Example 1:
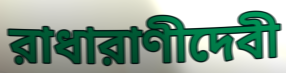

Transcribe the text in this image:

রাধারাণীদেবী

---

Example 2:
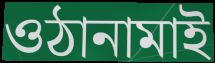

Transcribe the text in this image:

ওঠানামাই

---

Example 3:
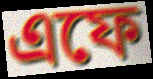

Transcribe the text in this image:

এফে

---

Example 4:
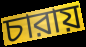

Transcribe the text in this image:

চারায়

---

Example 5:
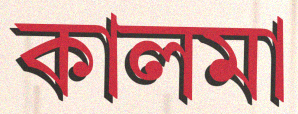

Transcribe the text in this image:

কালমা